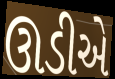
ઊડીએ